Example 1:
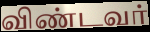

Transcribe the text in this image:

விண்டவர்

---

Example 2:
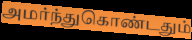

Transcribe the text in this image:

அமர்ந்துகொண்டதும்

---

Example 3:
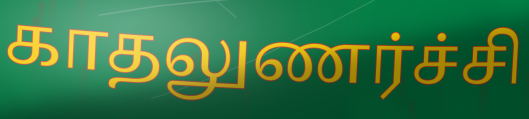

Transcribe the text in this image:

காதலுணர்ச்சி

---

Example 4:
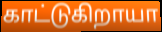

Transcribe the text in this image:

காட்டுகிறாயா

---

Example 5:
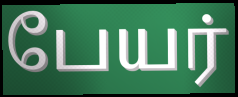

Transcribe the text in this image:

பேயர்